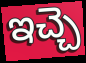
ఇచ్చె